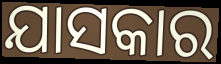
ଯାସକାର